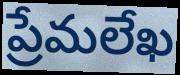
ప్రేమలేఖ